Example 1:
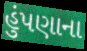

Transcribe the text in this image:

હુંપણાના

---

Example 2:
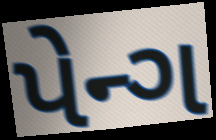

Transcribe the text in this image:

પેન્ગ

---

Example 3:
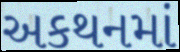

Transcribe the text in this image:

અકથનમાં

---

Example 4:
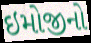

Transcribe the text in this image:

ઇમોજીનો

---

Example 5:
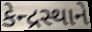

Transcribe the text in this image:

કેન્દ્રસ્થાને